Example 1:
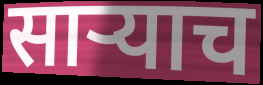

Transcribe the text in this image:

साऱ्याच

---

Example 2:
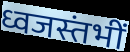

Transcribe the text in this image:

ध्वजस्तंभीं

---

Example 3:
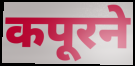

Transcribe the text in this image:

कपूरने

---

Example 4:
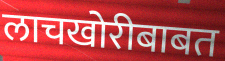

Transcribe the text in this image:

लाचखोरीबाबत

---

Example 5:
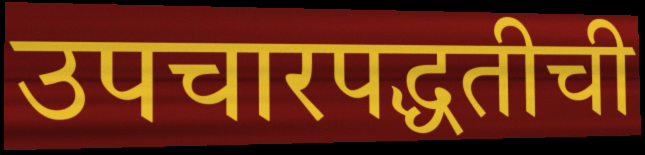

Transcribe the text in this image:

उपचारपद्धतीची